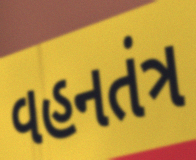
વહનતંત્ર